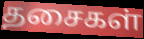
தசைகள்